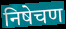
निषेचण